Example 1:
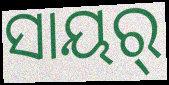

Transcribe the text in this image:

ସାୟର୍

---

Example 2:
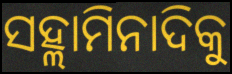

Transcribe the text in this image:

ସହ୍ଲାମିନାଦିକୁ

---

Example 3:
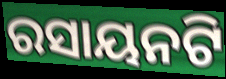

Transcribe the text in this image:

ରସାୟନଟି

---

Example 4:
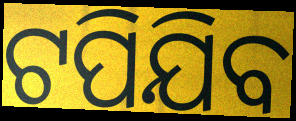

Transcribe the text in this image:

ଟପିଯିବ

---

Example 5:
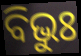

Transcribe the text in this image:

ବିଭୁଃ